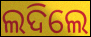
ଲଦିଲେ